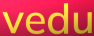
vedu